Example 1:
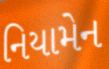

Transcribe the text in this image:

નિયામેન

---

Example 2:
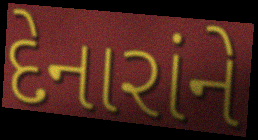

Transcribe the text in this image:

દેનારાંને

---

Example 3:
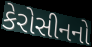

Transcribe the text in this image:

કેરોસીનનો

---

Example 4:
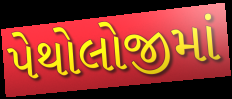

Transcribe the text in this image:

પેથોલોજીમાં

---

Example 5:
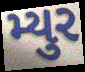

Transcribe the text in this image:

મ્યુર